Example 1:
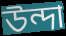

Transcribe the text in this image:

উন্দা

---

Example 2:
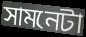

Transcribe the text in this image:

সামনেটা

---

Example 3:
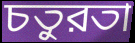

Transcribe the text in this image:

চতুরতা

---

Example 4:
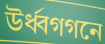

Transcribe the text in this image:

উর্ধ্বগগনে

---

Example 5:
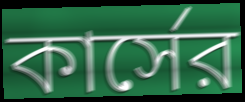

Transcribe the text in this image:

কার্সের